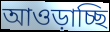
আওড়াচ্ছি